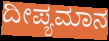
ದೀಪ್ಯಮಾನ